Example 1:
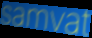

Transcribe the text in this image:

samvat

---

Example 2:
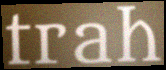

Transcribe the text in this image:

trah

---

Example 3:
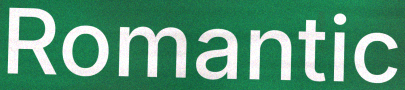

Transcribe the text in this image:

Romantic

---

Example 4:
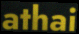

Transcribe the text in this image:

athai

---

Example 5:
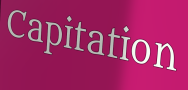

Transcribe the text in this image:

Capitation